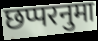
छप्परनुमा